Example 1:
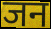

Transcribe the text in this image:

जन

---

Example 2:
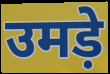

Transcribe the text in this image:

उमड़े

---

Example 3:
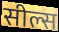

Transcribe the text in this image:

सील्स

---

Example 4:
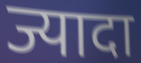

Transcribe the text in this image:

ज्यादा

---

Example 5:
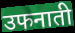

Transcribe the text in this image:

उफनाती